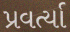
પ્રવર્ત્યા